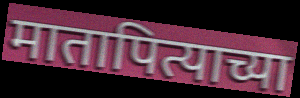
मातापित्याच्या